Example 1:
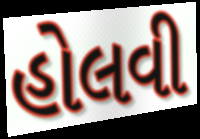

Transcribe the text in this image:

હોલવી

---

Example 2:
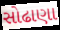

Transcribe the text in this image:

સોઢાણા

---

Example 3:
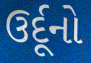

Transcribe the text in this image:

ઉર્દૂનો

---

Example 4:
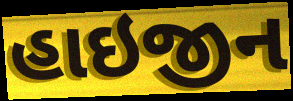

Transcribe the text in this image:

હાઇજીન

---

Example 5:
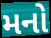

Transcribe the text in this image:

મનો